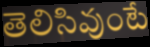
తెలిసివుంటే